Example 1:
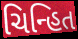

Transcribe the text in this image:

ચિન્હિત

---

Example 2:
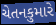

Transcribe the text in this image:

ચેતનકુમારે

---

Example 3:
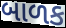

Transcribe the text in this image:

બાળક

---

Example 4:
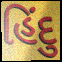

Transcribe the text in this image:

હિંદુ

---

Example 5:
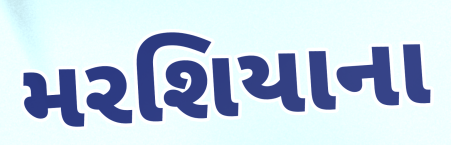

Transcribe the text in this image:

મરશિયાના